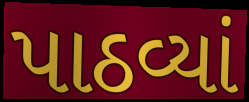
પાઠવ્યાં